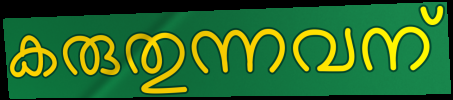
കരുതുന്നവന്